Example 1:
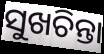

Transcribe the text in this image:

ସୁଖଚିନ୍ତା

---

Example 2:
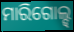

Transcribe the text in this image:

ମାରିଗୋଲ୍ଡ୍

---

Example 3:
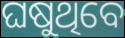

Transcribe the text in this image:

ଘଷୁଥିବେ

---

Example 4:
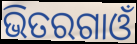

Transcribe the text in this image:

ଭିତରଗାଓଁ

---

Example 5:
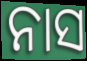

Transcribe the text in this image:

ନାସ